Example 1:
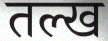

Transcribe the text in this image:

तल्ख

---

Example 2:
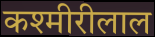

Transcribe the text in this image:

कश्मीरीलाल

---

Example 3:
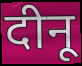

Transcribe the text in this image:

दीनू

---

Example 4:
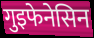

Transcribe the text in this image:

गुइफेनेसिन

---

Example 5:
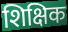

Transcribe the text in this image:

शिक्षिक